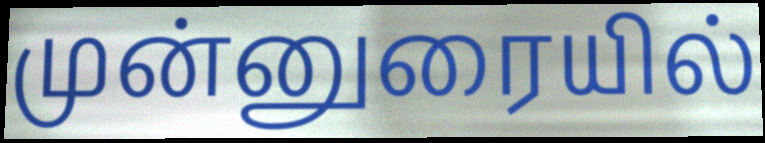
முன்னுரையில்